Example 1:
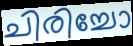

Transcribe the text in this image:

ചിരിച്ചോ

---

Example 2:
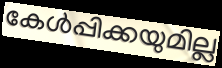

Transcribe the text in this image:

കേൾപ്പിക്കയുമില്ല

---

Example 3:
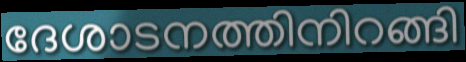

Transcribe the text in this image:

ദേശാടനത്തിനിറങ്ങി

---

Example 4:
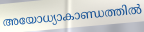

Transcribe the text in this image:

അയോധ്യാകാണ്ഡത്തിൽ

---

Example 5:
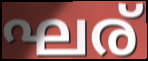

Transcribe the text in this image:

ഘര്